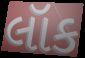
લૉક